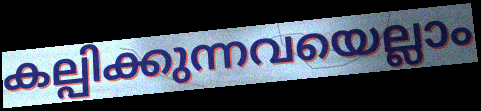
കല്പിക്കുന്നവയെല്ലാം